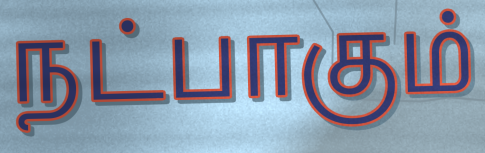
நட்பாகும்